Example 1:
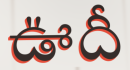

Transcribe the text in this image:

ఊదీ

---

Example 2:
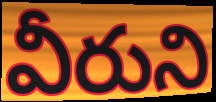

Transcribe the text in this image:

వీరుని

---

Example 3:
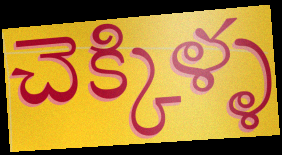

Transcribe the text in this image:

చెక్కిళ్ళ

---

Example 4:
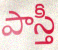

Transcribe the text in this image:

పాస్తీ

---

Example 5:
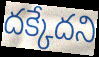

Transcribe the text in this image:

దక్కేదని